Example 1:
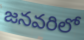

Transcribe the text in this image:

జనవరిలో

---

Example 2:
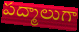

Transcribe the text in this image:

పద్మాలుగా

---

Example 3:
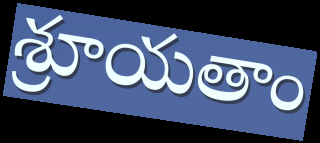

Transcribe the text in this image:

శ్రూయతాం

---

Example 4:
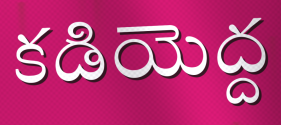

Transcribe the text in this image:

కడియెద్ద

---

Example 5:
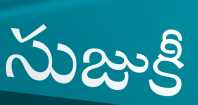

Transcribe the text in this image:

సుజుకీ